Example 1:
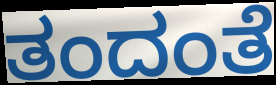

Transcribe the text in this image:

ತಂದಂತೆ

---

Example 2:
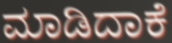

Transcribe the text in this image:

ಮಾಡಿದಾಕೆ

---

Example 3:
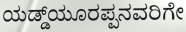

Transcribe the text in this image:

ಯಡ್ಡ್‌ಯೂರಪ್ಪನವರಿಗೇ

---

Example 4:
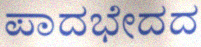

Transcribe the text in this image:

ಪಾದಭೇದದ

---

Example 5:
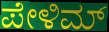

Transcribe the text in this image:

ಪೇಳಿಮ್